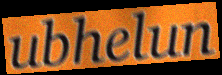
ubhelun